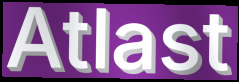
Atlast